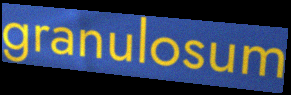
granulosum